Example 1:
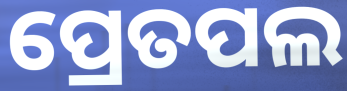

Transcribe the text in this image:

ପ୍ରେତପଲ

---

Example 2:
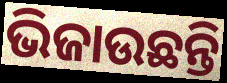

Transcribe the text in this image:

ଭିଜାଉଛନ୍ତି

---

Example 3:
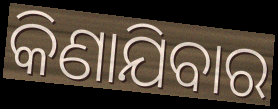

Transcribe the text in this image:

କିଣାଯିବାର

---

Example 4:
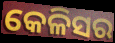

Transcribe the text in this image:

କେଳିସର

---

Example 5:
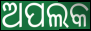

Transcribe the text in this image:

ଅପଲକ